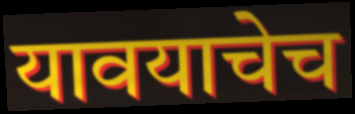
यावयाचेच